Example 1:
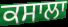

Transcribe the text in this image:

ਕਸਾਲਾ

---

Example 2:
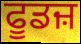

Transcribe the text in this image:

ਫੂਡਜ਼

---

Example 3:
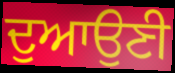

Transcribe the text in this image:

ਦੁਆਉਣੀ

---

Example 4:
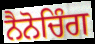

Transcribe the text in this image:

ਨੈਨੋਚਿੰਗ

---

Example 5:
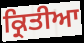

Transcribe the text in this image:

ਕ੍ਰਿਤੀਆ